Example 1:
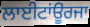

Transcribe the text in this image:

ਲਾਈਟਾਂਊਰਜਾ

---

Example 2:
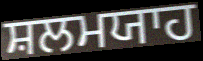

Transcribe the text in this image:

ਸ਼ਲਮਯਾਹ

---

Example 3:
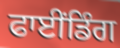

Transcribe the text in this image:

ਫਾਈਂਡਿੰਗ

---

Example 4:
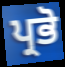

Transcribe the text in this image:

ਪ੍ਰਭੋ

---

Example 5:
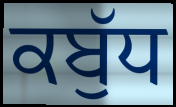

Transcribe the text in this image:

ਕਬੁੱਧ